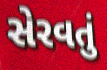
સેરવતું